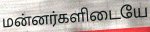
மன்னர்களிடையே